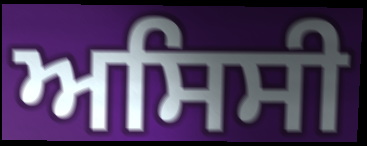
ਅਸਿਸੀ